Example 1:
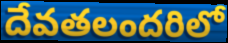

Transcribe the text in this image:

దేవతలందరిలో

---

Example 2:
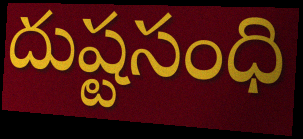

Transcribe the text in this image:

దుష్టసంధి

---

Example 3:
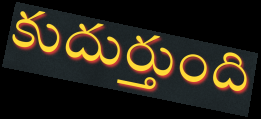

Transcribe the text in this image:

కుదుర్తుంది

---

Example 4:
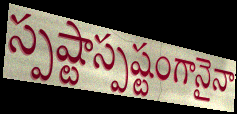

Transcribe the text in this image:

స్పష్టాస్పష్టంగానైనా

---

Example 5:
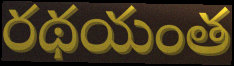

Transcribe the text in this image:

రథయంత